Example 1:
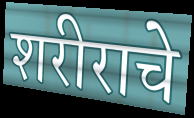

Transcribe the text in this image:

शरीराचे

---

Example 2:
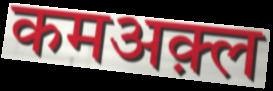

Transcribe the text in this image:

कमअक़्ल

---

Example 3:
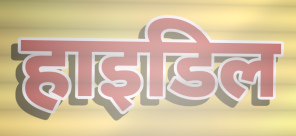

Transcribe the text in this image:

हाइडिल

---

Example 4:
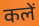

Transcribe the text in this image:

कलें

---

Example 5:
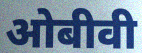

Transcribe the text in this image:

ओबीवी